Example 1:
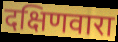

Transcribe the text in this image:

दक्षिणवारा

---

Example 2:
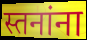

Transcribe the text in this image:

स्तनांना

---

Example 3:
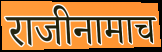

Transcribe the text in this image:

राजीनामाच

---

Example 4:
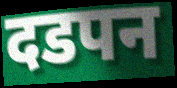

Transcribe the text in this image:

दडपन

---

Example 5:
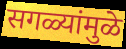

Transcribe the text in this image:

सगळ्यांमुळे